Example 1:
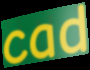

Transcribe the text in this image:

cad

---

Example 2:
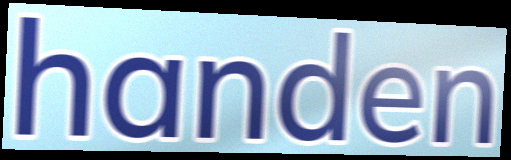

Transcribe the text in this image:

handen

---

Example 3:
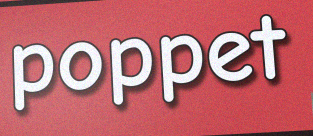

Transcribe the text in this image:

poppet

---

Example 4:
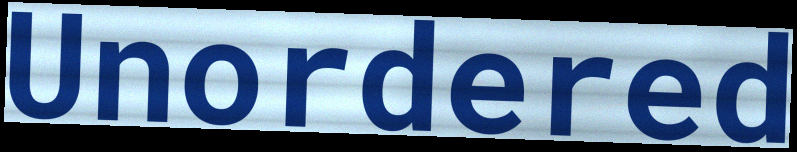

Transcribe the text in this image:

Unordered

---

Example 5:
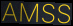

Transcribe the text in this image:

AMSS